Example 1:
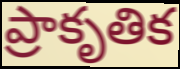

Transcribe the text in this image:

ప్రాకృతిక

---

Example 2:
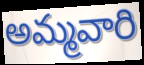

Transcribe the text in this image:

అమ్మవారి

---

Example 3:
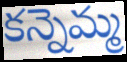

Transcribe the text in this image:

కన్నెమ్మ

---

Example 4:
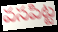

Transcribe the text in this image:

వసపిట్ట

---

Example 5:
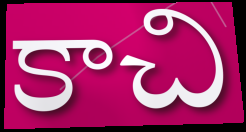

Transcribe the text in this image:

కాచి